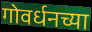
गोवर्धनच्या